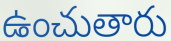
ఉంచుతారు